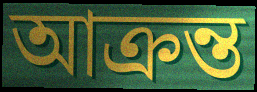
আক্রন্ত